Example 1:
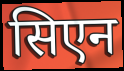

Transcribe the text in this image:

सिएन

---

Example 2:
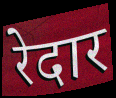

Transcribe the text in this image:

रेदार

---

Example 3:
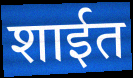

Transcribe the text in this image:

शाईत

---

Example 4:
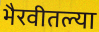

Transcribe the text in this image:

भैरवीतल्या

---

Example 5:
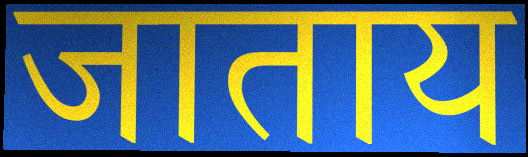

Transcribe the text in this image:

जाताय